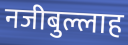
नजीबुल्लाह